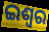
ଇଶ୍ବର